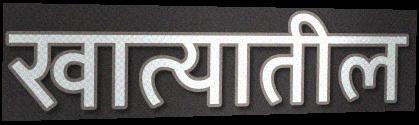
खात्यातील